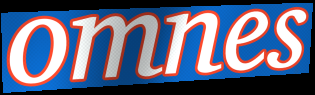
omnes